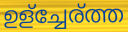
ഉള്ച്ചേര്ത്ത